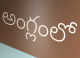
అంగ్లంలో